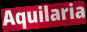
Aquilaria